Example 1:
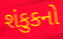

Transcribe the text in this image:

શંકુકનો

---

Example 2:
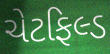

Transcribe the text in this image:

ચેટફિલ્ડ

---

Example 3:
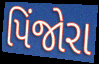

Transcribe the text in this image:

પિંજોરા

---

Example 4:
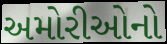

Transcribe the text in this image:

અમોરીઓનો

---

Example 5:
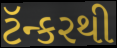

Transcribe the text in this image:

ટૅન્કરથી